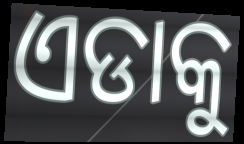
ଏଡାକୁ